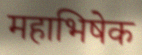
महाभिषेक